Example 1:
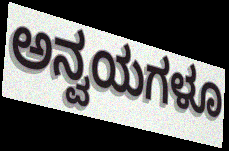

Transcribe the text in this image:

ಅನ್ವಯಗಳೂ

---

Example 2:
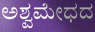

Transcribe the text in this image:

ಅಶ್ವಮೇಧದ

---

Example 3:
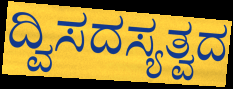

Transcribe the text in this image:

ದ್ವಿಸದಸ್ಯತ್ವದ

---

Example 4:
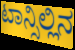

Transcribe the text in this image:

ಟಾನ್ಸಿಲ್ಲಿನ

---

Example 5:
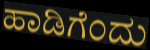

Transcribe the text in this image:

ಹಾಡಿಗೆಂದು